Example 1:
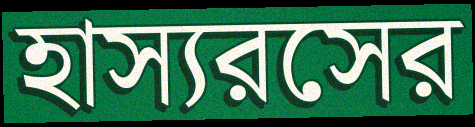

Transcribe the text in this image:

হাস্যরসের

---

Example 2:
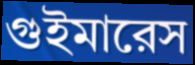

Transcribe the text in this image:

গুইমারেস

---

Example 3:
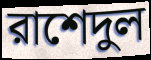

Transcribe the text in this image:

রাশেদুল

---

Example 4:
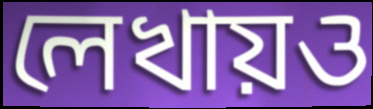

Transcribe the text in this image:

লেখায়ও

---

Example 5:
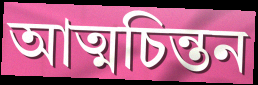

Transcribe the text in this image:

আত্মচিন্তন